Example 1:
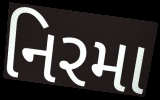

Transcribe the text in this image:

નિરમા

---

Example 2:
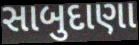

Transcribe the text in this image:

સાબુદાણા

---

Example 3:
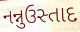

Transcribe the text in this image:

નન્નુઉસ્તાદ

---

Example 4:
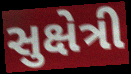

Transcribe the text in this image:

સુક્ષેત્રી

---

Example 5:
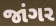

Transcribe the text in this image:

જાંગર